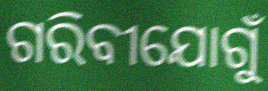
ଗରିବୀଯୋଗୁଁ